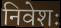
निवेशः